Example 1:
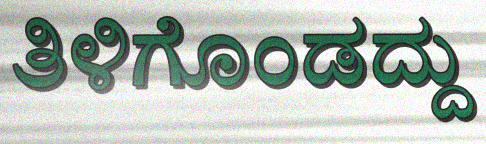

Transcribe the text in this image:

ತಿಳಿಗೊಂಡದ್ದು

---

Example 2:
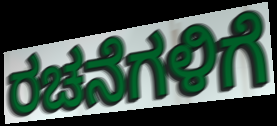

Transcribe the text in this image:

ರಚನೆಗಳಿಗೆ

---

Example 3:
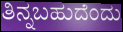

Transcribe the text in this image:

ತಿನ್ನಬಹುದೆಂದು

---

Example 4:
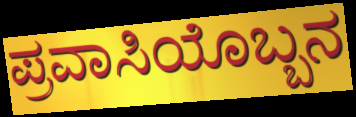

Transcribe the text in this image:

ಪ್ರವಾಸಿಯೊಬ್ಬನ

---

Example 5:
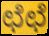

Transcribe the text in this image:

ಛೆಛೆ